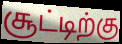
சூட்டிற்கு